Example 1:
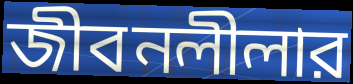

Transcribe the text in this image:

জীবনলীলার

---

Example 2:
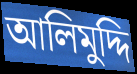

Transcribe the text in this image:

আলিমুদ্দি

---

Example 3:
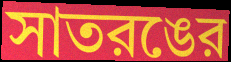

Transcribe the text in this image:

সাতরঙের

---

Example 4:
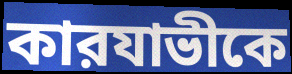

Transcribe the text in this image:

কারযাভীকে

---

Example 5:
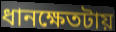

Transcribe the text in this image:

ধানক্ষেতটায়